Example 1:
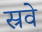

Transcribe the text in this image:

स्रवे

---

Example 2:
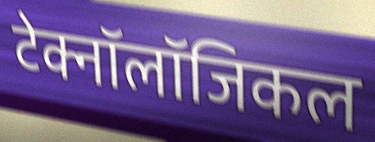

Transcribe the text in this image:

टेक्नॉलॉजिकल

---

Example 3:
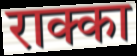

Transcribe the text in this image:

राक्का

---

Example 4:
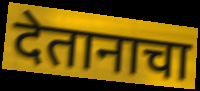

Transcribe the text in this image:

देतानाचा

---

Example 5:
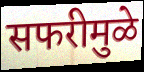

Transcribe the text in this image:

सफरीमुळे